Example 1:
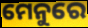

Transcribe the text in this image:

ମେନୁରେ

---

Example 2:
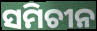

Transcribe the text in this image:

ସମିଚୀନ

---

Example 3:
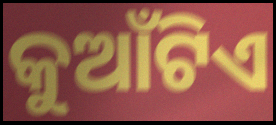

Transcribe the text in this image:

କୁଆଁଟିଏ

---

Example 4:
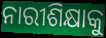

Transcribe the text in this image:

ନାରୀଶିକ୍ଷାକୁ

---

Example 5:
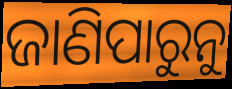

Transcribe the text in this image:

ଜାଣିପାରୁନୁ